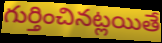
గుర్తించినట్లయితే